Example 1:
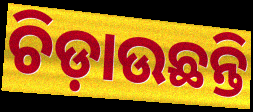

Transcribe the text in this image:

ଚିଡ଼ାଉଛନ୍ତି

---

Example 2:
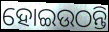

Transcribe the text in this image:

ହୋଇଉଠନ୍ତି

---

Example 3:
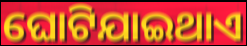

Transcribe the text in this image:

ଘୋଟିଯାଇଥାଏ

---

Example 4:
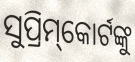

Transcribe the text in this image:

ସୁପ୍ରିମ୍‌କୋର୍ଟଙ୍କୁ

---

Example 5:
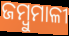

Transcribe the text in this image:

ଜମ୍ବୁମାଳୀ